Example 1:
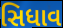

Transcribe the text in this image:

સિધાવ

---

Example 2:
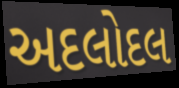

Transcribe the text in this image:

અદલોદલ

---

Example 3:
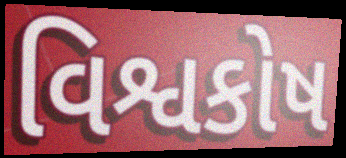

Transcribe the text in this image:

વિશ્વકોષ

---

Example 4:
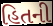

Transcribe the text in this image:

હિતની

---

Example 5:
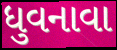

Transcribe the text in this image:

ધુવનાવા